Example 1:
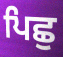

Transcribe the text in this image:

ਪਿਛੁ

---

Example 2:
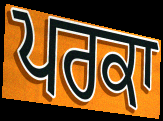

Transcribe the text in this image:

ਪਰਕਾ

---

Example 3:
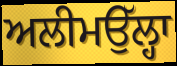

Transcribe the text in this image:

ਅਲੀਮਉੱਲ੍ਹਾ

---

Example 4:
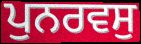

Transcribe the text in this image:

ਪੁਨਰਵਸੁ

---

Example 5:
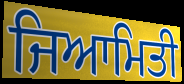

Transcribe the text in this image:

ਜਿਆਮਿਤੀ